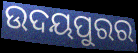
ଉଦୟପୁରର